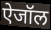
ऐजॉल